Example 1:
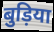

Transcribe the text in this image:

बुड़िया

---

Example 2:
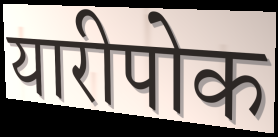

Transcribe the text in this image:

यारीपोक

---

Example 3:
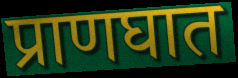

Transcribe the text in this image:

प्राणघात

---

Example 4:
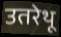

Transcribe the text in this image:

उतरेथू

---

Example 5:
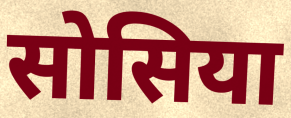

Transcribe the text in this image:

सोसिया